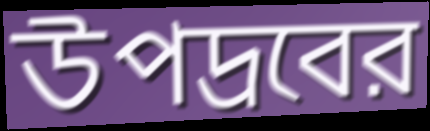
উপদ্রবের